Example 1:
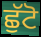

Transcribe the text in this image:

ਛੁੱਟੋ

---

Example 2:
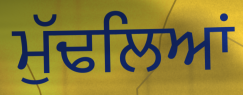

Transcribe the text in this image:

ਮੁੱਢਲਿਆਂ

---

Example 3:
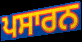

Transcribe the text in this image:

ਪਸਾਰਨ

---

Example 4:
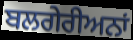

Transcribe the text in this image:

ਬਲਗੇਰੀਅਨਾਂ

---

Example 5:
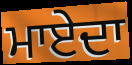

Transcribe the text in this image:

ਮਾਏਦਾ